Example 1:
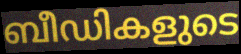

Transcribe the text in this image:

ബീഡികളുടെ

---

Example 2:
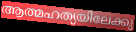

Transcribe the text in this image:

ആത്മഹത്യയിലേക്കു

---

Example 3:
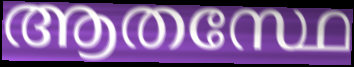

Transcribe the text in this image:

ആതസ്ഥേ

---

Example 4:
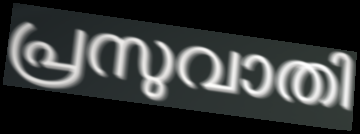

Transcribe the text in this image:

പ്രസുവാതി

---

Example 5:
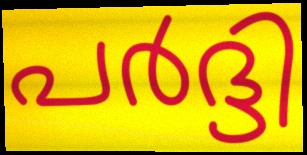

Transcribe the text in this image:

പർദ്ദി